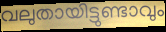
വലുതായിട്ടുണ്ടാവും